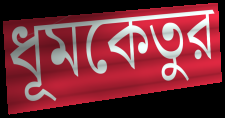
ধূমকেতুর